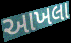
આખલા